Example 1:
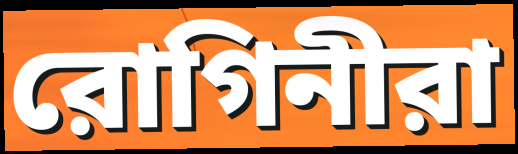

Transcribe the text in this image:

রোগিনীরা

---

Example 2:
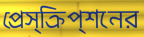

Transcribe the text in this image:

প্রেস্‌ক্রিপ্‌শনের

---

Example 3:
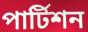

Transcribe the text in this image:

পার্টিশন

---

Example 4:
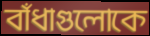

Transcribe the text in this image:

বাঁধাগুলোকে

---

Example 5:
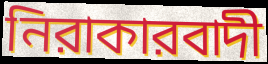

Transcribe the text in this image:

নিরাকারবাদী